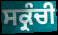
ਸਕ੍ਰੰਚੀ